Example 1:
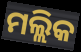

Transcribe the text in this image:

ମଲ୍ଲିକ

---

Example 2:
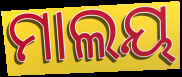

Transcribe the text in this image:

ମାଲୟ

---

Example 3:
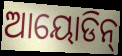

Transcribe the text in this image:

ଆୟୋଡିନ୍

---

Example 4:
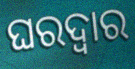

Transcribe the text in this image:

ଘରଦ୍ବାର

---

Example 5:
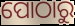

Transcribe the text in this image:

ପୋଠାରୁ